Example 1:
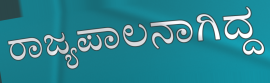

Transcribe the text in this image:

ರಾಜ್ಯಪಾಲನಾಗಿದ್ದ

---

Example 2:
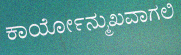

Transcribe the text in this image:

ಕಾರ್ಯೋನ್ಮುಖವಾಗಲಿ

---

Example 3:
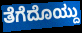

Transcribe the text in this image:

ತೆಗೆದೊಯ್ದು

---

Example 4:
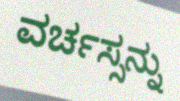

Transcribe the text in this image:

ವರ್ಚಸ್ಸನ್ನು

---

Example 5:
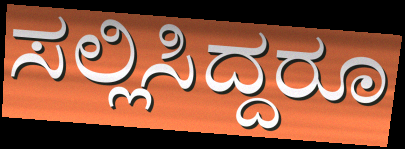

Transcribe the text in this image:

ಸಲ್ಲಿಸಿದ್ದರೂ